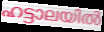
ഹട്ടാലയിൽ